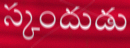
స్కందుడు